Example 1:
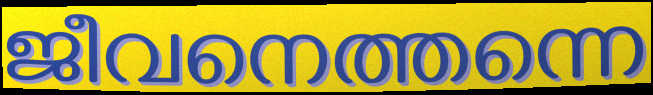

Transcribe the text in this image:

ജീവനെത്തന്നെ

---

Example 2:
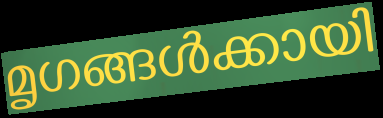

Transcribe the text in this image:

മൃഗങ്ങൾക്കായി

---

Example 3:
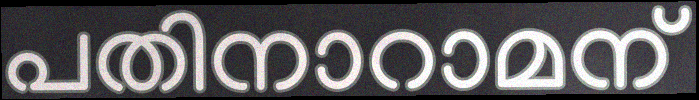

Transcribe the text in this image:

പതിനാറാമന്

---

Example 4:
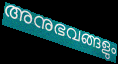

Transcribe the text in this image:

അനുഭവങ്ങളും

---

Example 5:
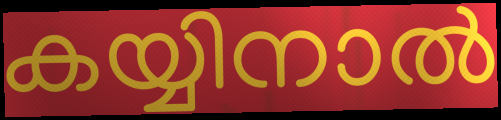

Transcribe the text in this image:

കയ്യിനാൽ